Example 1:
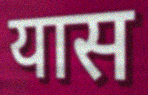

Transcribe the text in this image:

यास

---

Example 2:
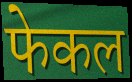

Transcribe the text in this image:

फेकल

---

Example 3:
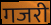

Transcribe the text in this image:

गजरी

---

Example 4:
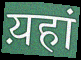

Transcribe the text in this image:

य़हां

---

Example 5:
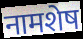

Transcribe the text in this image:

नामशेष